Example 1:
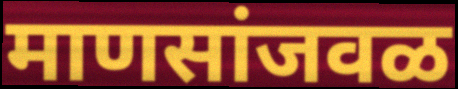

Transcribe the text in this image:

माणसांजवळ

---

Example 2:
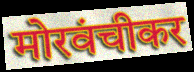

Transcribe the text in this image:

मोरवंचीकर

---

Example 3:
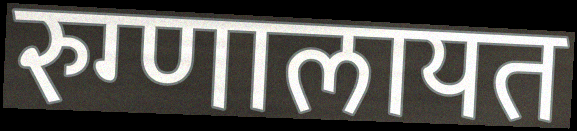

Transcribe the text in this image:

रुग्णालायत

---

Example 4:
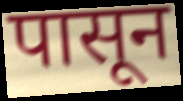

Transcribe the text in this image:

पासून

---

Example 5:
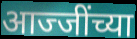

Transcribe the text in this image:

आज्जींच्या